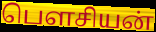
பௌசியன்